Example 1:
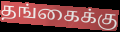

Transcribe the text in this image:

தங்கைக்கு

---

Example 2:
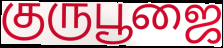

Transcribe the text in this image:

குருபூஜை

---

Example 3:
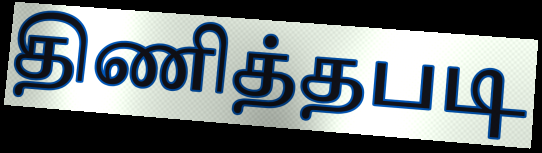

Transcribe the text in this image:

திணித்தபடி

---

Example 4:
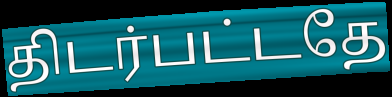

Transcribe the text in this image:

திடர்பட்டதே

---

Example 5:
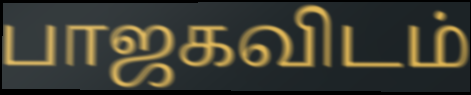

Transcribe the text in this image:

பாஜகவிடம்